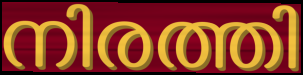
നിരത്തി